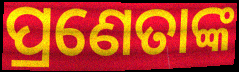
ପ୍ରଣେତାଙ୍କ